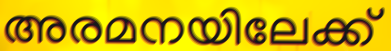
അരമനയിലേക്ക്